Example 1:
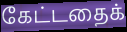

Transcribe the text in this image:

கேட்டதைக்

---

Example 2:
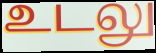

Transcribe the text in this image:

உடலு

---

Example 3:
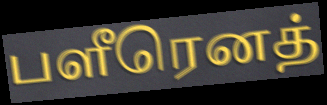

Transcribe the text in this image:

பளீரெனத்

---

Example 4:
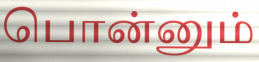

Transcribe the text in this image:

பொன்னும்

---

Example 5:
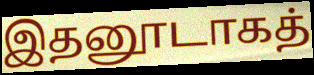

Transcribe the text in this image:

இதனூடாகத்